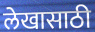
लेखासाठी